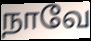
நாவே